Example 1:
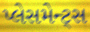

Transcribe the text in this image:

પ્લેસમેન્ટ્સ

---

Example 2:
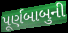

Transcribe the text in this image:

પૂર્ણબાબુની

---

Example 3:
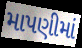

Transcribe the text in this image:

માપણીમાં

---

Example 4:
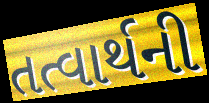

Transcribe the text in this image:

તત્વાર્થની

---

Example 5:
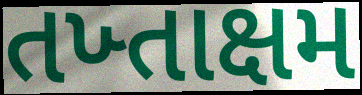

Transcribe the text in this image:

તખ્તાક્ષમ